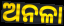
ଅନଳା